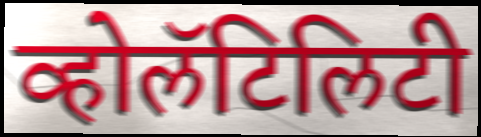
व्होलॅटिलिटी